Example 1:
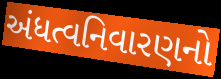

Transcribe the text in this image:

અંધત્વનિવારણનો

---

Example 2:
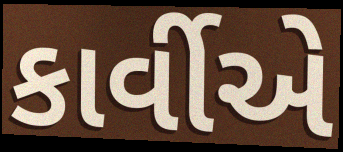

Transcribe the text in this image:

કાર્વીએ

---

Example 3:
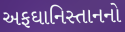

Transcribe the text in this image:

અફઘાનિસ્તાનનો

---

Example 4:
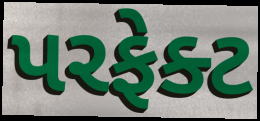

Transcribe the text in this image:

પરફેક્ટ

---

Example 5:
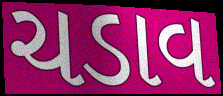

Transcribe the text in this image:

ચડાવ